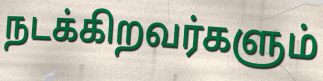
நடக்கிறவர்களும்